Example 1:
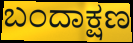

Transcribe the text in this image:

ಬಂದಾಕ್ಷಣ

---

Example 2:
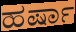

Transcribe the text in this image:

ಹರ್ಷಾ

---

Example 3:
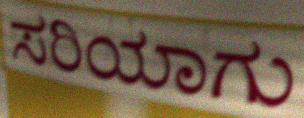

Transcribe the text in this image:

ಸರಿಯಾಗು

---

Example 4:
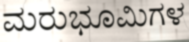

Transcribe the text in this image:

ಮರುಭೂಮಿಗಳ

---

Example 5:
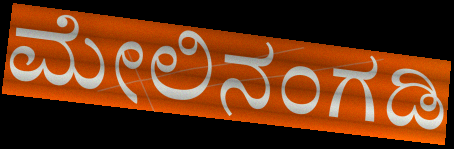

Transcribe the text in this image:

ಮೇಲಿನಂಗಡಿ